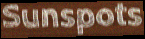
Sunspots